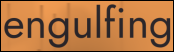
engulfing